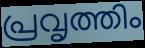
പ്രവൃത്തിം